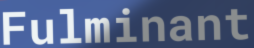
Fulminant